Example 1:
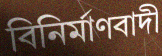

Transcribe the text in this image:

বিনিৰ্মাণবাদী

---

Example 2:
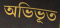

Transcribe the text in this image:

অভিভূত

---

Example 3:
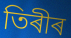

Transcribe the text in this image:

তিৰীৰ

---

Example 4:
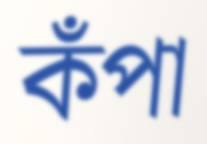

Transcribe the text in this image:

কঁপা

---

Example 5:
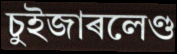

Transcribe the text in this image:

চুইজাৰলেণ্ড